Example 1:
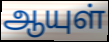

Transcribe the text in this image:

ஆயுள்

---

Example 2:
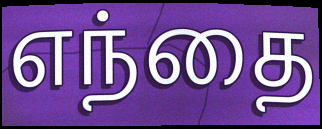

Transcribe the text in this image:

எந்தை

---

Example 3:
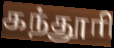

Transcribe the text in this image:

கந்தூரி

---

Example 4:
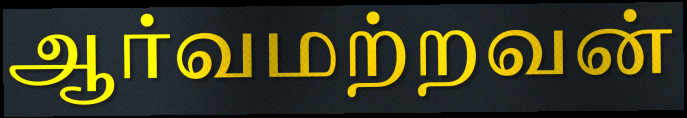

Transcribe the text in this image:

ஆர்வமற்றவன்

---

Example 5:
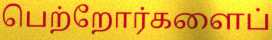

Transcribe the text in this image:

பெற்றோர்களைப்